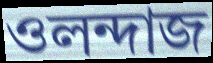
ওলন্দাজ